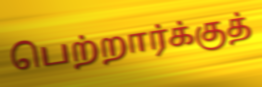
பெற்றார்க்குத்